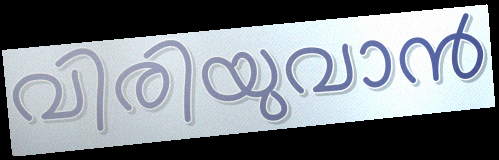
വിരിയുവാൻ